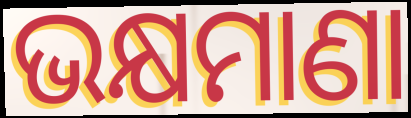
ଭକ୍ଷମାଣା